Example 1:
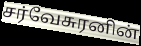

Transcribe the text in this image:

சர்வேசுரனின்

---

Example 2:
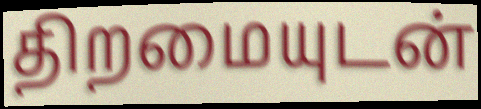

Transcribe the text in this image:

திறமையுடன்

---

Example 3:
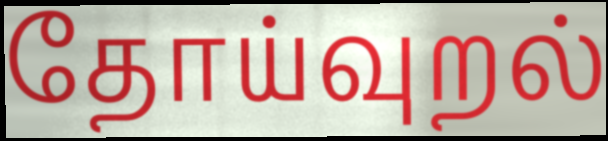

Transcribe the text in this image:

தோய்வுறல்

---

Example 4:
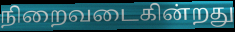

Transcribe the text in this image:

நிறைவடைகின்றது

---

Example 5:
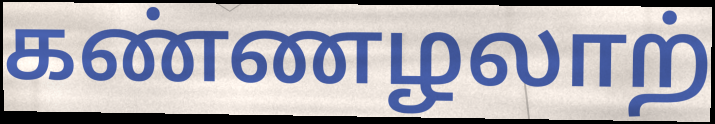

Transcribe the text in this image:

கண்ணழலாற்